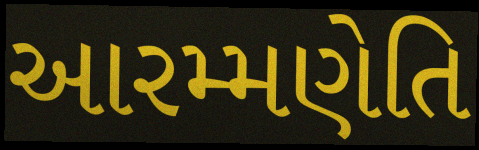
આરમ્મણેતિ